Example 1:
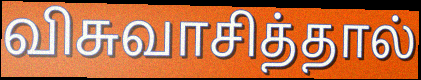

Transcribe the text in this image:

விசுவாசித்தால்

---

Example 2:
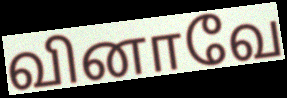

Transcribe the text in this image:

வினாவே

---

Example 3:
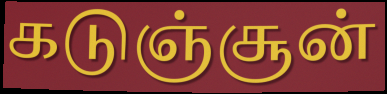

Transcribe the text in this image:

கடுஞ்சூன்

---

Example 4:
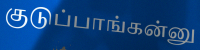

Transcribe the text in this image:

குடுப்பாங்கன்னு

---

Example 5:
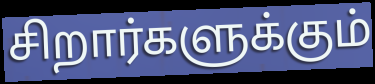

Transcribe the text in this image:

சிறார்களுக்கும்